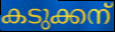
കടുക്കന്